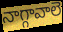
నాగ్గావాలె